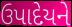
ઉપાદેયને